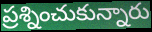
ప్రశ్నించుకున్నారు